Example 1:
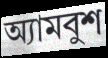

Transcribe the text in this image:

অ্যামবুশ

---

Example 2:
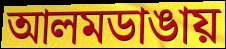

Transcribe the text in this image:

আলমডাঙায়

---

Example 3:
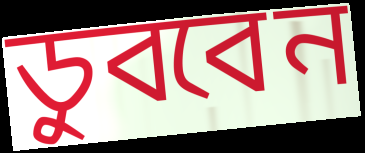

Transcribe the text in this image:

ডুববেন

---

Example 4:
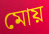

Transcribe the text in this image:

মোয়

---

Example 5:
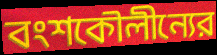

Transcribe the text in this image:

বংশকৌলীন্যের